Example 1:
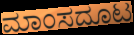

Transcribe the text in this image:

ಮಾಂಸದೂಟ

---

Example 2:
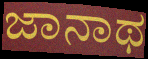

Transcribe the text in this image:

ಜಾನಾಥ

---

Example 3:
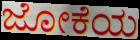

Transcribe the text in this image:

ಜೋಕೆಯ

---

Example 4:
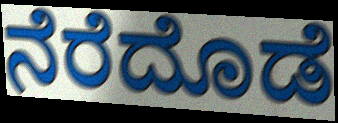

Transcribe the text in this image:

ನೆರೆದೊಡೆ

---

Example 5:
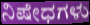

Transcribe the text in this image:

ನಿಷೇಧಗಳು